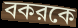
বকরকে